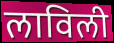
लाविली